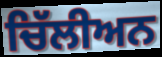
ਚਿੱਲੀਅਨ